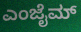
ಎಂಜೈಮ್